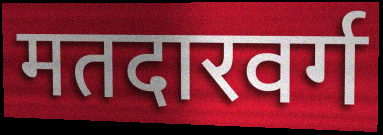
मतदारवर्ग